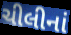
ચીલીનાં